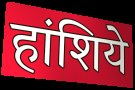
हांशिये